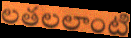
లతలలాంటి